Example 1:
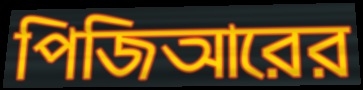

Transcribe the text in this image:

পিজিআরের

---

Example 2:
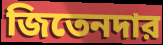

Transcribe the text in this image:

জিতেনদার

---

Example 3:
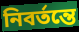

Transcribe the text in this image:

নিবর্তন্তে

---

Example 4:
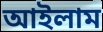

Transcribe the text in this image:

আইলাম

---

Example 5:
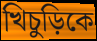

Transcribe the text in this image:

খিচুড়িকে